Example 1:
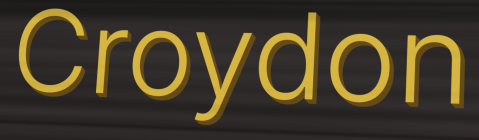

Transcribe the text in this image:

Croydon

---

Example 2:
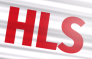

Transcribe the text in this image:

HLS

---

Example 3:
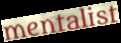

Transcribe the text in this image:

mentalist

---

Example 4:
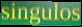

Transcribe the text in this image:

singulos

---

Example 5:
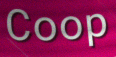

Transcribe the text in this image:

Coop